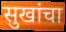
सुखांचा